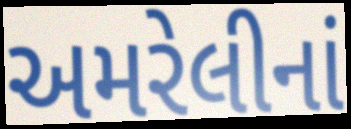
અમરેલીનાં